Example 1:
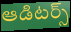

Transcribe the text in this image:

ఆడిటర్స్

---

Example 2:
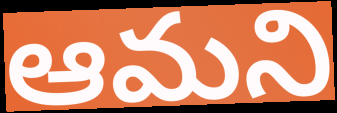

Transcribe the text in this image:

ఆమని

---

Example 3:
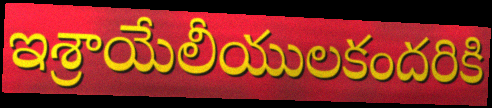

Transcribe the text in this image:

ఇశ్రాయేలీయులకందరికి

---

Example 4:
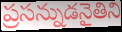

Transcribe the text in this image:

ప్రసన్నుడనైతిని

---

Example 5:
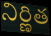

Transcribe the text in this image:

నిర్ణిత